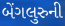
બેંગલુરુની